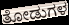
ತೋಡುಗಳ